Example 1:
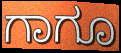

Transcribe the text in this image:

ಗಾಗೂ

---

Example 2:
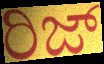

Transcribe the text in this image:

ರಿಜ್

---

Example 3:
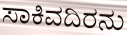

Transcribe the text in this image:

ಸಾಕಿವದಿರನು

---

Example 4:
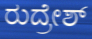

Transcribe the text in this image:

ರುದ್ರೇಶ್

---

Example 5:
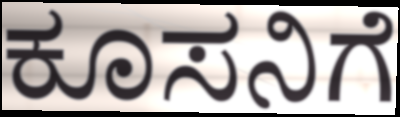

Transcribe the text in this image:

ಕೂಸನಿಗೆ